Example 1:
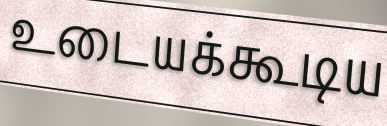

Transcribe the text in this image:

உடையக்கூடிய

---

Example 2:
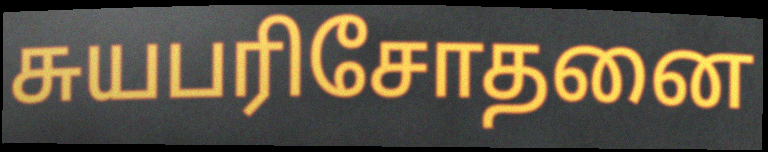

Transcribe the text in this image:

சுயபரிசோதனை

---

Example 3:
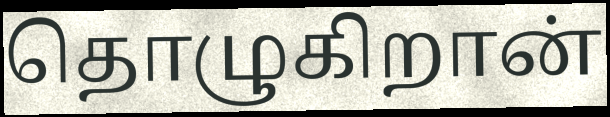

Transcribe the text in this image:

தொழுகிறான்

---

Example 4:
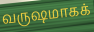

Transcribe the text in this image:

வருஷமாகக்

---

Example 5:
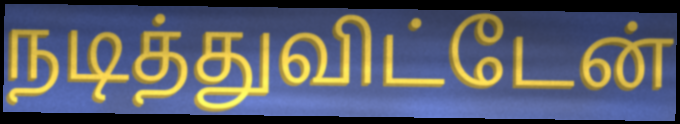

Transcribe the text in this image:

நடித்துவிட்டேன்